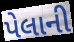
પેલાની